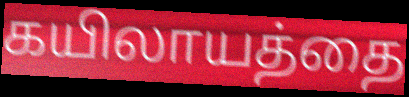
கயிலாயத்தை